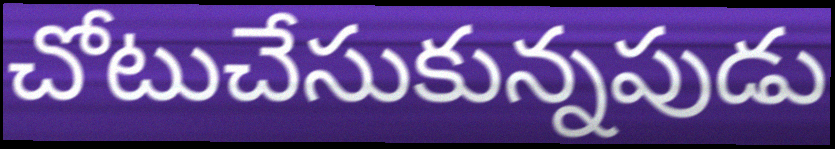
చోటుచేసుకున్నపుడు